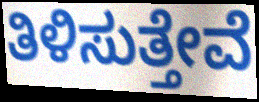
ತಿಳಿಸುತ್ತೇವೆ